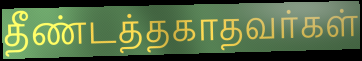
தீண்டத்தகாதவர்கள்